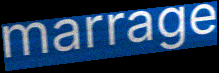
marrage